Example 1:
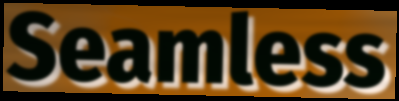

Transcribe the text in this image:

Seamless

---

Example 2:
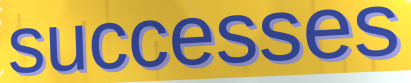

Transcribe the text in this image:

successes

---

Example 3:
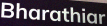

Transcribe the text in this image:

Bharathiar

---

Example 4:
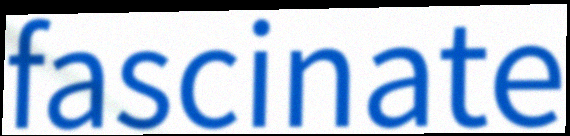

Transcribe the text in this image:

fascinate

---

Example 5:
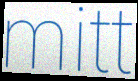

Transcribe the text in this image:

mitt